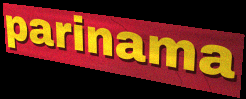
parinama